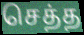
செத்த